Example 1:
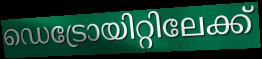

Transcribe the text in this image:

ഡെട്രോയിറ്റിലേക്ക്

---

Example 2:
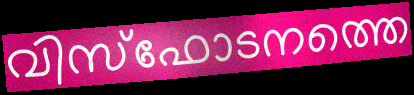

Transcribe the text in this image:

വിസ്ഫോടനത്തെ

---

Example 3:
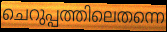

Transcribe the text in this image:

ചെറുപ്പത്തിലെതന്നെ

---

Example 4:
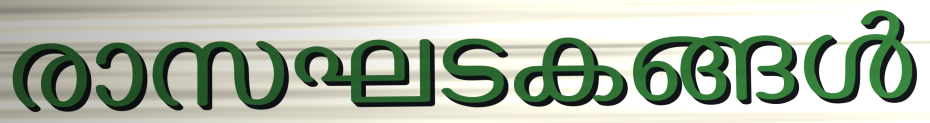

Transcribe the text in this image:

രാസഘടകങ്ങൾ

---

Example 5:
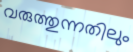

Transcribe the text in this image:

വരുത്തുന്നതിലും